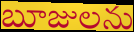
బూజులను